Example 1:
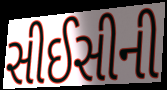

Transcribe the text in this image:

સીઈસીની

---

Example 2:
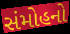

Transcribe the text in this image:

સંમોહનો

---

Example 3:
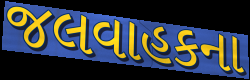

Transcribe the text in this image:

જલવાહકના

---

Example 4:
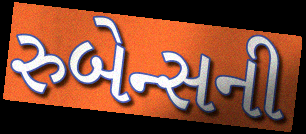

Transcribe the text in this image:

રુબેન્સની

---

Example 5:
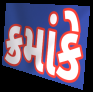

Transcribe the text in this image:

ક્રમાંકે